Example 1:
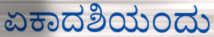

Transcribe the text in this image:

ಏಕಾದಶಿಯಂದು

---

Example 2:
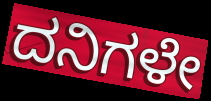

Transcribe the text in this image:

ದನಿಗಳೇ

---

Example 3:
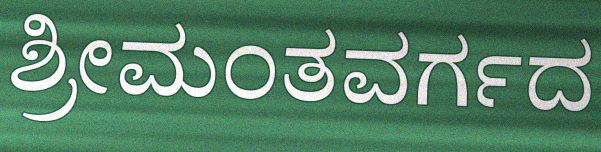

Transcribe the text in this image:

ಶ್ರೀಮಂತವರ್ಗದ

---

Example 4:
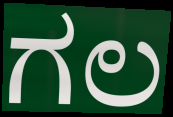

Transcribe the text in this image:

ಗಲ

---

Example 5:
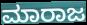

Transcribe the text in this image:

ಮಾರಾಜ